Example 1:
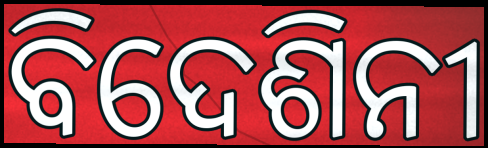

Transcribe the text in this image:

ବିଦେଶିନୀ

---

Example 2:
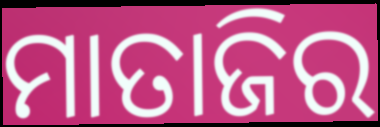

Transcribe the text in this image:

ମାତାଜିର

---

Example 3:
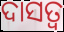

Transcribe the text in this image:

ଦାସତ୍ୱ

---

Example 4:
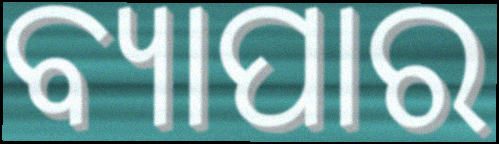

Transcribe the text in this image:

ବ୍ୟାପାର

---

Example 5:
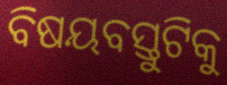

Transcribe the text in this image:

ବିଷୟବସ୍ତୁଟିକୁ